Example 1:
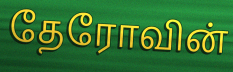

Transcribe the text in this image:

தேரோவின்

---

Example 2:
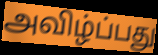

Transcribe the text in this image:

அவிழ்ப்பது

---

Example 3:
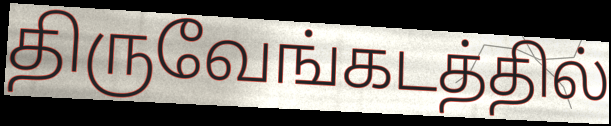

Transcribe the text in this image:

திருவேங்கடத்தில்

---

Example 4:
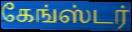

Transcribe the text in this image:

கேங்ஸ்டர்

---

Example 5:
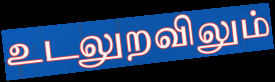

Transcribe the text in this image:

உடலுறவிலும்